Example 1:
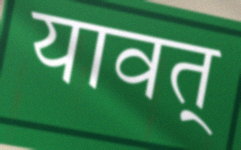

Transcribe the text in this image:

यावत्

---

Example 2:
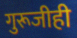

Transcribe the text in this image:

गुरूजीही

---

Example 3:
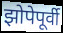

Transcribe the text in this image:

झोपेपूर्वी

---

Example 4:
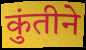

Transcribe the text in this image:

कुंतीने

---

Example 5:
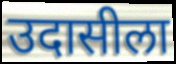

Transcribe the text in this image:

उदासीला